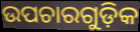
ଉପଚାରଗୁଡ଼ିକ